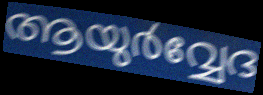
ആയുർവ്വേദ